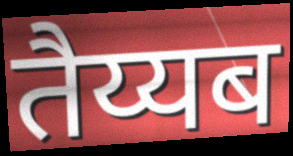
तैय्यब